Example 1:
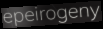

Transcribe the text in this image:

epeirogeny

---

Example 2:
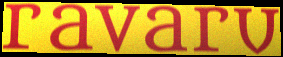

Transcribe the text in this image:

ravaru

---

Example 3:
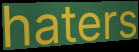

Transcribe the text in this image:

haters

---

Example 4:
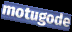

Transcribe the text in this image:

motugode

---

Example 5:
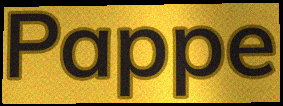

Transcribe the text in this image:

Pappe